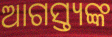
ଆଗସ୍ତ୍ୟଙ୍କ